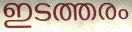
ഇടത്തരം